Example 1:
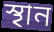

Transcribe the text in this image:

স্থান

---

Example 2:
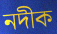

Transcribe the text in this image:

নদীক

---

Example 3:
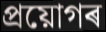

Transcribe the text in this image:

প্ৰয়োগৰ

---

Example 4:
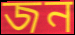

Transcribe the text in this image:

জন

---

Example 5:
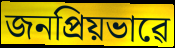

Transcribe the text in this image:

জনপ্ৰিয়ভাৱে